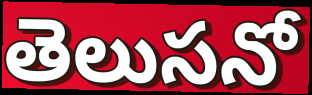
తెలుసనో